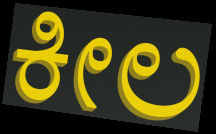
ಕೀಲ